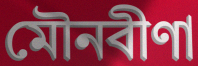
মৌনবীণা